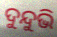
ଦୁନ୍ଦୁଭି